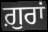
ਗ਼ੁਰਾਂ